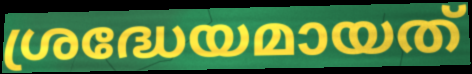
ശ്രദ്ധേയമായത്